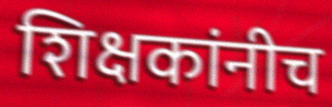
शिक्षकांनीच